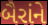
બૈરાંને